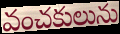
వంచకులును